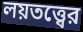
লয়তত্ত্বের